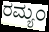
ರಮ್ಯಂ